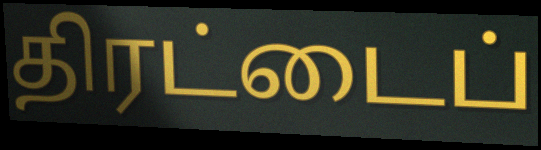
திரட்டைப்